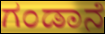
ಗಂಡಾನೆ